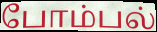
போம்பல்